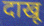
दाखू